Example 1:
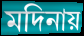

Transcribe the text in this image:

মদিনায়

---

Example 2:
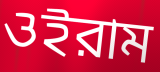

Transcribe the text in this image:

ওইরাম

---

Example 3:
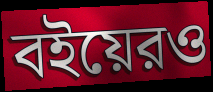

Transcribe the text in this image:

বইয়েরও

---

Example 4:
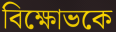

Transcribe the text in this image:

বিক্ষোভকে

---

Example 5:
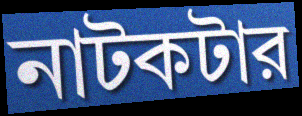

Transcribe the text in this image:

নাটকটার